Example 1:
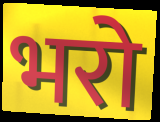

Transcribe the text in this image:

भरो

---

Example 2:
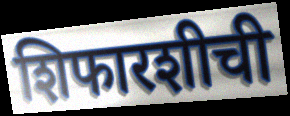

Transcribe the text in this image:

शिफारशीची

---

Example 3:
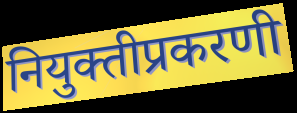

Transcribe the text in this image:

नियुक्तीप्रकरणी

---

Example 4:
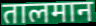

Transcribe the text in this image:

तालमान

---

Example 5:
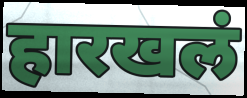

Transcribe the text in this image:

हारखलं